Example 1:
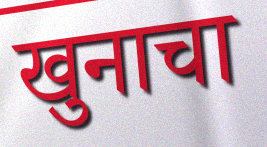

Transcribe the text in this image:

खुनाचा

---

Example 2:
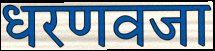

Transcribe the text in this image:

धरणवजा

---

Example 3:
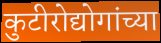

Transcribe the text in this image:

कुटीरोद्योगांच्या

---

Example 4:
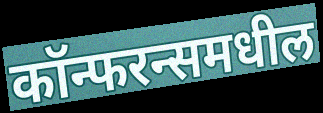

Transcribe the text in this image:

कॉन्फरन्समधील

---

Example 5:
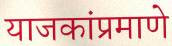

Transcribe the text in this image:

याजकांप्रमाणे